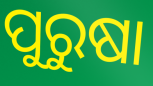
ପୁରୁଷା